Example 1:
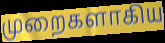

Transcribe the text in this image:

முறைகளாகிய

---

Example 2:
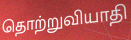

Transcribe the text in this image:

தொற்றுவியாதி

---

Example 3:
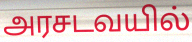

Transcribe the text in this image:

அரசடவயில்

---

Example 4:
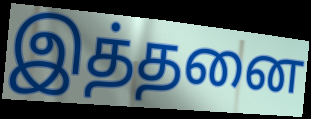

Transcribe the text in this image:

இத்தனை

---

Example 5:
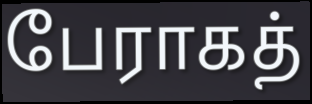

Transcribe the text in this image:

பேராகத்